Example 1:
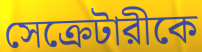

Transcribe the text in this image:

সেক্রেটারীকে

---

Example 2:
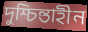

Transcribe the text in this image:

দুশ্চিন্তাহীন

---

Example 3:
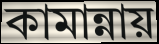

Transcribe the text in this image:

কামান্নায়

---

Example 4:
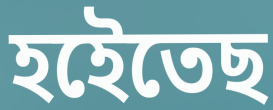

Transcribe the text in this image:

হইেতেছ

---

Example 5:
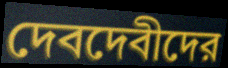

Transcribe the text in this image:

দেবদেবীদের